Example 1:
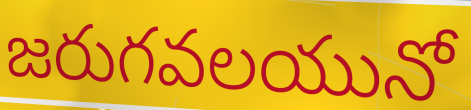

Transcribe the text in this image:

జరుగవలయునో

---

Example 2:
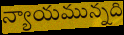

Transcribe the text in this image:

న్యాయమున్నది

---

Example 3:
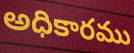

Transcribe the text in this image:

అధికారము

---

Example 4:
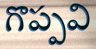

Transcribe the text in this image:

గొప్పవి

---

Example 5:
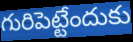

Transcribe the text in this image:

గురిపెట్టేందుకు